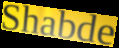
Shabde